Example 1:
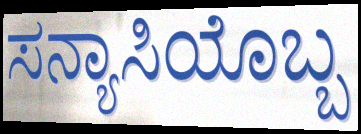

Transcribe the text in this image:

ಸನ್ಯಾಸಿಯೊಬ್ಬ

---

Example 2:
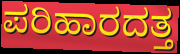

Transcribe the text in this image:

ಪರಿಹಾರದತ್ತ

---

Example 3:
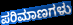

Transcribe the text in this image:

ಪರಿಮಾಣಗಳು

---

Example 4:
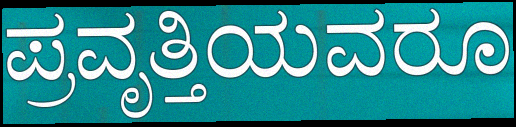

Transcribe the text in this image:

ಪ್ರವೃತ್ತಿಯವರೂ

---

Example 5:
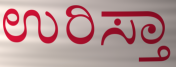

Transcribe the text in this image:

ಉರಿಸ್ತಾ